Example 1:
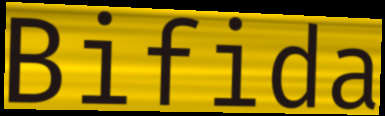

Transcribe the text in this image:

Bifida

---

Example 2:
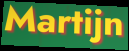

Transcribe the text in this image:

Martijn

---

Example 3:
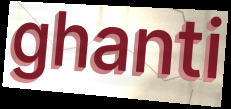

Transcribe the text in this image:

ghanti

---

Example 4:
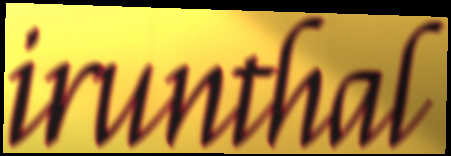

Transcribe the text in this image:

irunthal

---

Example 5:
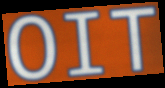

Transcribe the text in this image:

OIT